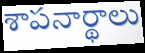
శాపనార్థాలు